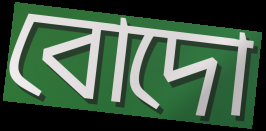
বোদো